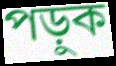
পড়ুক